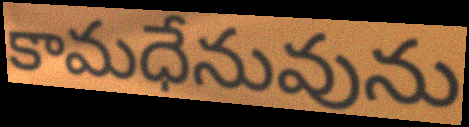
కామధేనువును